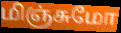
மிஞ்சுமோ